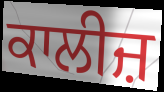
ਕਾਲੀਜ਼